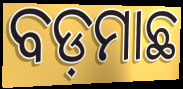
ବଡ଼ମାଛ